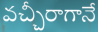
వచ్చీరాగానే